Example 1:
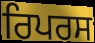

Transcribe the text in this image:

ਰਿਪਰਸ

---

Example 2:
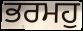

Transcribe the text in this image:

ਭਰਮਹੁ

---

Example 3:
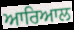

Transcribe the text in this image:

ਆਰਿਆਲ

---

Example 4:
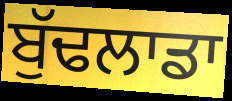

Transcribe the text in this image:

ਬੁੱਢਲਾਡਾ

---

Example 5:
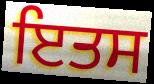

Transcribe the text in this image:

ਇਤਸ